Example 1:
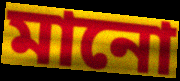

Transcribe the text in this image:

মানো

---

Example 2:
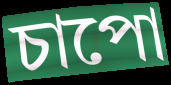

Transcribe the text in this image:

চাপো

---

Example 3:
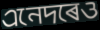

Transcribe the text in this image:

এনেদৰেও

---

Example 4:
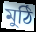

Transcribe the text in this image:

মুঠি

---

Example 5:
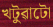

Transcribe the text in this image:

খটুৱাটো